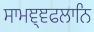
ਸਾਮਞ੍ਞਫਲਾਨਿ